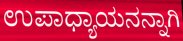
ಉಪಾಧ್ಯಾಯನನ್ನಾಗಿ